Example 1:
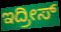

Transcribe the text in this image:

ಇದ್ರೀಸ್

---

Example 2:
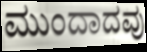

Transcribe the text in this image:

ಮುಂದಾದವು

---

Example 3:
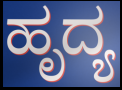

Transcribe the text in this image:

ಹೃದ್ಯ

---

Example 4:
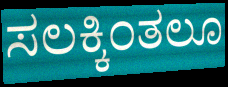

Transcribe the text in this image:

ಸಲಕ್ಕಿಂತಲೂ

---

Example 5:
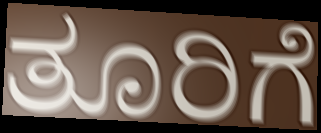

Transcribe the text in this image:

ತೂರಿಗೆ